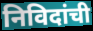
निविदांची